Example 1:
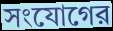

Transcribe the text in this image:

সংযোগের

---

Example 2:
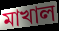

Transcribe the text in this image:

মাখাল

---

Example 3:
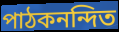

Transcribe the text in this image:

পাঠকনন্দিত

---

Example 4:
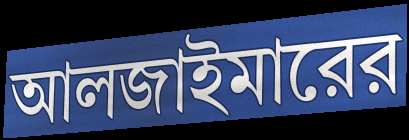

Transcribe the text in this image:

আলজাইমারের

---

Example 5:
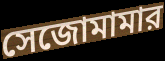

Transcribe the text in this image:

সেজোমামার